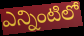
ఎన్నింటిలో